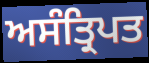
ਅਸੰਤ੍ਰਿਪਤ